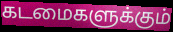
கடமைகளுக்கும்